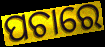
ପଚାରେ